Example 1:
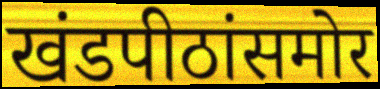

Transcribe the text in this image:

खंडपीठांसमोर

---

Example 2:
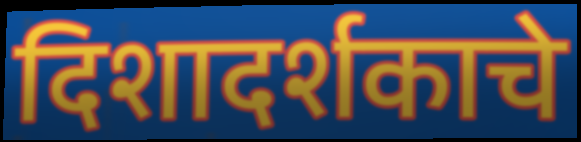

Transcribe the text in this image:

दिशादर्शकाचे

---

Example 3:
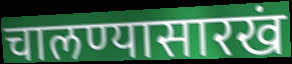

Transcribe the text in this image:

चालण्यासारखं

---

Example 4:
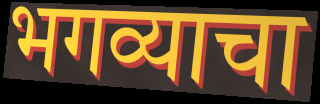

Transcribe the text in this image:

भगव्याचा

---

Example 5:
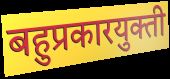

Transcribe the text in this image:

बहुप्रकारयुक्ती